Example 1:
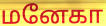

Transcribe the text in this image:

மனேகா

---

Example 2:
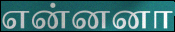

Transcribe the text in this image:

என்னனா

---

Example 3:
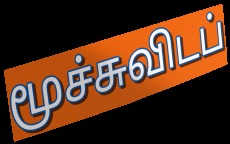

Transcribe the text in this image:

மூச்சுவிடப்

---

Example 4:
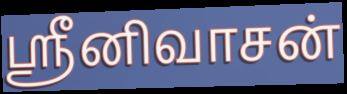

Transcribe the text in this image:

ஸ்ரீனிவாசன்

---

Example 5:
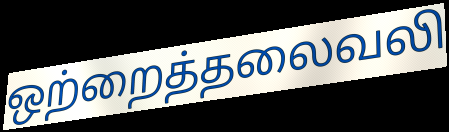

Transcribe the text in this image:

ஒற்றைத்தலைவலி